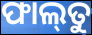
ଫାଲ୍‌ତୁ